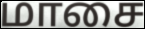
மாசை